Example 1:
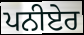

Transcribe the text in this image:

ਪਨੀਏਰ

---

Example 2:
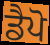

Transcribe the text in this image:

ਡੈਪੋ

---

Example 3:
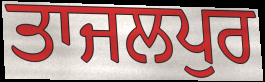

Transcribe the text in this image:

ਤਾਜਲਪੁਰ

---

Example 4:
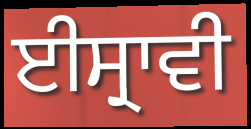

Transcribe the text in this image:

ਈਸ੍ਰਾਵੀ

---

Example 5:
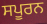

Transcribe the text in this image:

ਸਪੂਰਨ